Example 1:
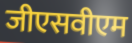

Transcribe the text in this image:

जीएसवीएम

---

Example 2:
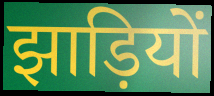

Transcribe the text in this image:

झाड़ियों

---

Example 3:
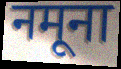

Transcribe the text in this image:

नमूना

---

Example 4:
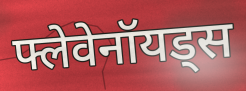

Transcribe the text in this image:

फ्लेवेनॉयड्स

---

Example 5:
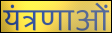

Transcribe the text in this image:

यंत्रणाओं